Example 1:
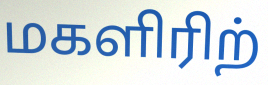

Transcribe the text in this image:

மகளிரிற்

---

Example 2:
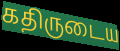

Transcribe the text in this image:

கதிருடைய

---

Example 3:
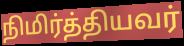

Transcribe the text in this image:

நிமிர்த்தியவர்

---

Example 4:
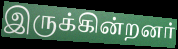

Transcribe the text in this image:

இருக்கின்றனர்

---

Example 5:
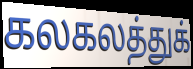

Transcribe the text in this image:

கலகலத்துக்